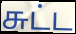
சுட்ட